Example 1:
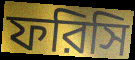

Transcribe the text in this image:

ফরিসি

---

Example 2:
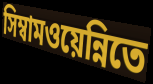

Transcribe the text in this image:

সিম্বামওয়েন্নিতে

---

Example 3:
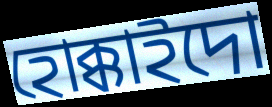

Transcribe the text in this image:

হোক্কাইদো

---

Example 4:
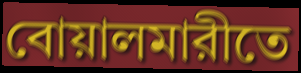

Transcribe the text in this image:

বোয়ালমারীতে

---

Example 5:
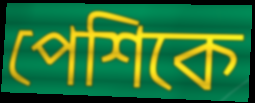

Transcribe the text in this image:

পেশিকে